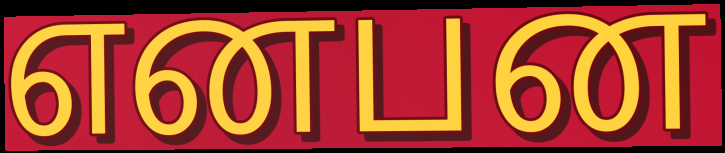
எனபன